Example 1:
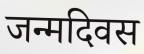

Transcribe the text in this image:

जन्मदिवस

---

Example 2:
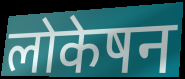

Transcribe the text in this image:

लोकेषन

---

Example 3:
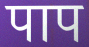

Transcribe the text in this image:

पाप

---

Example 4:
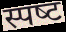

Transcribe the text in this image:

स्‍पष्‍ट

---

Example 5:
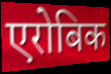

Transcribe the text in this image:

एरोबिक